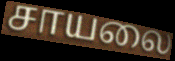
சாயலை